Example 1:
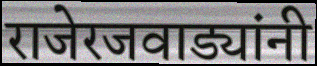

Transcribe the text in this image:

राजेरजवाड्यांनी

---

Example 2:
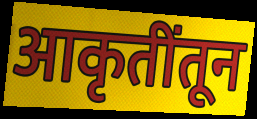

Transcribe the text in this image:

आकृतींतून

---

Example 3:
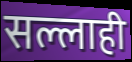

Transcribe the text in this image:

सल्लाही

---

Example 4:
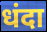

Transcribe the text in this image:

धंदा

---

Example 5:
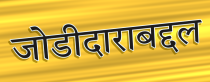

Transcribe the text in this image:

जोडीदाराबद्दल